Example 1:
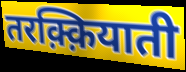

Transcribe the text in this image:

तरक़्क़ियाती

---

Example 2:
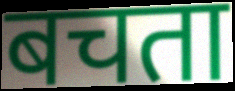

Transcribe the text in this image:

बचता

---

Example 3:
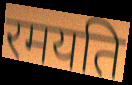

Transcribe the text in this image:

रमयति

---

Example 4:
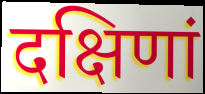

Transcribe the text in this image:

दक्षिणां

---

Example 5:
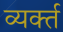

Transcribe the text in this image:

व्यर्क्त